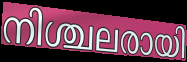
നിശ്ചലരായി